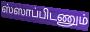
ஸ்ஸாப்பிடணும்